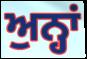
ਅੁਨ੍ਹਾਂ